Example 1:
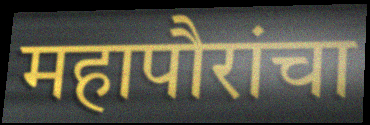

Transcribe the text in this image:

महापौरांचा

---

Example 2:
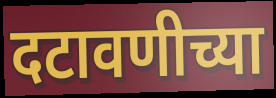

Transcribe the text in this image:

दटावणीच्या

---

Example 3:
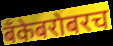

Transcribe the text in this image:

बँकेबरोबरच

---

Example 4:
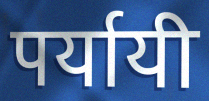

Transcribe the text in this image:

पर्यायी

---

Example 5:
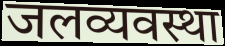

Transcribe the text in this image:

जलव्यवस्था